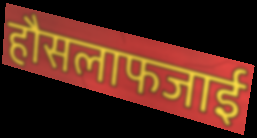
हौसलाफजाई